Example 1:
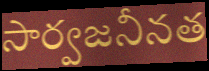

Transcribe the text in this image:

సార్వజనీనత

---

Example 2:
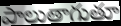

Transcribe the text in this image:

పాలుతాగుతూ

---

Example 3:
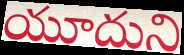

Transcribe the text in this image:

యూదుని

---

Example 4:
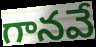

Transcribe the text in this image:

గానవే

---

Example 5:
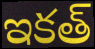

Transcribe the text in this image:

ఇకత్